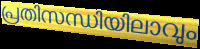
പ്രതിസന്ധിയിലാവും